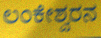
ಲಂಕೇಶ್ವರನ